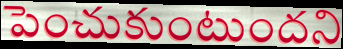
పెంచుకుంటుందని